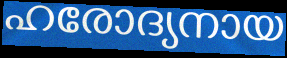
ഹരോദ്യനായ